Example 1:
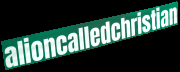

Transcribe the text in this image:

alioncalledchristian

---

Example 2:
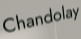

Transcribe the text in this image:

Chandolay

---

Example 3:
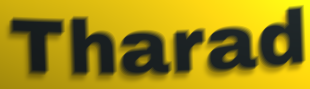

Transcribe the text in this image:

Tharad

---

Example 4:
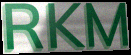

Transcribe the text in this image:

RKM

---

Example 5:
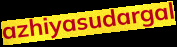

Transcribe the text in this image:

azhiyasudargal